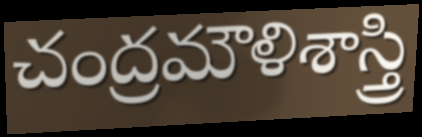
చంద్రమౌళిశాస్త్రి